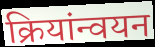
क्रियांन्वयन